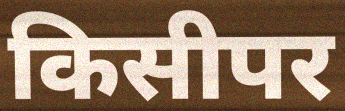
किसीपर